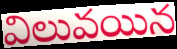
విలువయిన